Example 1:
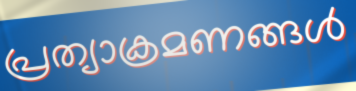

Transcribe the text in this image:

പ്രത്യാക്രമണങ്ങൾ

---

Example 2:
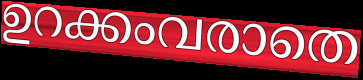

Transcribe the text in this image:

ഉറക്കംവരാതെ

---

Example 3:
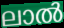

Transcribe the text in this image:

ലാൽ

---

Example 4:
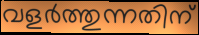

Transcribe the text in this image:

വളർത്തുന്നതിന്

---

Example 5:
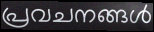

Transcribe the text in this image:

പ്രവചനങ്ങൾ